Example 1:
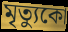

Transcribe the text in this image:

মৃত্যুকো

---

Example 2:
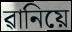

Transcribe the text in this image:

ৱানিয়ে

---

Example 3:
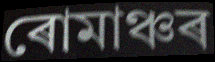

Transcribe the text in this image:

ৰোমাঞ্চৰ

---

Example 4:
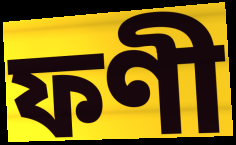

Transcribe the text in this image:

ফণী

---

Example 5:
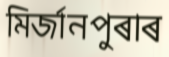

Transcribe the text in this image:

মিৰ্জানপুৰাৰ